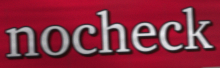
nocheck